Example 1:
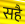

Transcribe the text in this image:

सहै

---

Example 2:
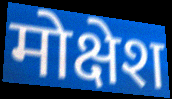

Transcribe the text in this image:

मोक्षेश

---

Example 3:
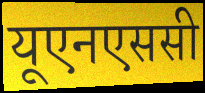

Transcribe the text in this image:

यूएनएससी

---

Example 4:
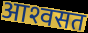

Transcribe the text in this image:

आश्वसत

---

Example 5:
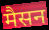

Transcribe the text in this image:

मैसन